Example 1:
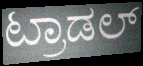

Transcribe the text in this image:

ಟ್ರಾಡಲ್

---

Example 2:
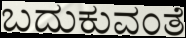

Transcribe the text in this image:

ಬದುಕುವಂತೆ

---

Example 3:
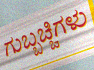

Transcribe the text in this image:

ಗುಬ್ಬಚ್ಚಿಗಳು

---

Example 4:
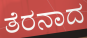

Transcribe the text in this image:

ತೆರನಾದ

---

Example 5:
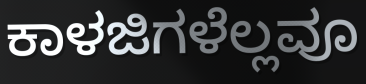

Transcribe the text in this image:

ಕಾಳಜಿಗಳೆಲ್ಲವೂ